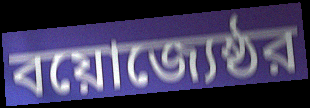
বয়োজ্যেষ্ঠর